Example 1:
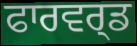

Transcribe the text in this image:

ਫਾਰਵਰ੍ਡ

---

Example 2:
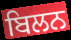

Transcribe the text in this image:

ਬਿਲਨ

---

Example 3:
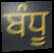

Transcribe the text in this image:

ਬੰਧੂ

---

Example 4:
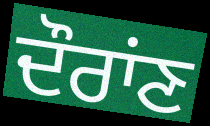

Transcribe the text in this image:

ਦੌਰਾਂਣ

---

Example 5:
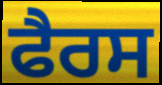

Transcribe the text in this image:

ਫੈਰਸ